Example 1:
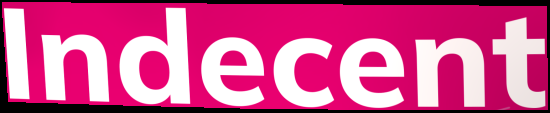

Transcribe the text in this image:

Indecent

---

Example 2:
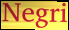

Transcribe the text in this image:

Negri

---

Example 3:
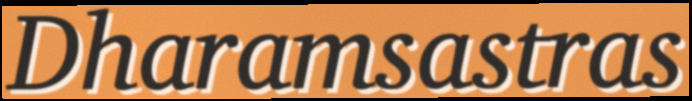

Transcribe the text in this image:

Dharamsastras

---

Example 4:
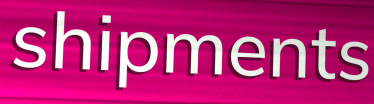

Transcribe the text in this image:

shipments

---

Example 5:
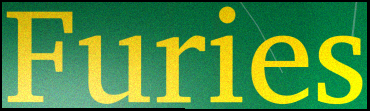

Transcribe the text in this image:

Furies